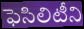
ఫెసిలిటీని